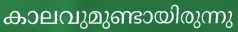
കാലവുമുണ്ടായിരുന്നു